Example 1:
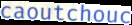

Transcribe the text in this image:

caoutchouc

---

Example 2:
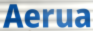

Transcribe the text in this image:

Aerua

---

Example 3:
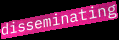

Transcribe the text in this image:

disseminating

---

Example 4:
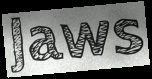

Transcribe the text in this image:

Jaws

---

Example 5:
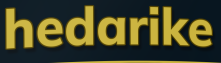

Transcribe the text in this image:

hedarike